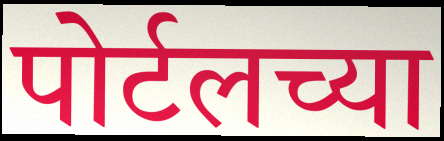
पोर्टलच्या